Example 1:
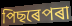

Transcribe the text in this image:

পিছৰেপৰা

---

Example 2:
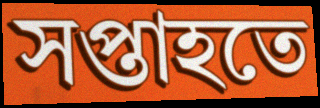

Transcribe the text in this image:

সপ্তাহতে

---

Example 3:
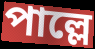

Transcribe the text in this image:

পাল্লে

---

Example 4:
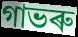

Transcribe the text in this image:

গাভৰু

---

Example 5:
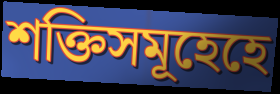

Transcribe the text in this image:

শক্তিসমূহেহে